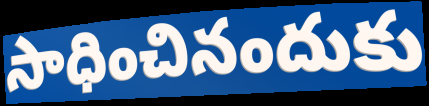
సాధించినందుకు